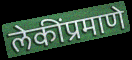
लेकींप्रमाणे